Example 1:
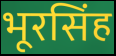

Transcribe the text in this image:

भूरसिंह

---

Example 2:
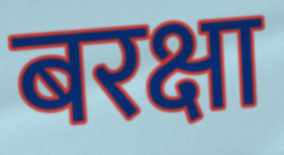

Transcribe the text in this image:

बरक्षा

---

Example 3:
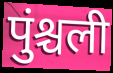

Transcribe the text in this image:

पुंश्चली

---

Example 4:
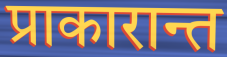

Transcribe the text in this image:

प्राकारान्त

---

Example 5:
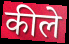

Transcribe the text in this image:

कीले